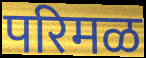
परिमळ